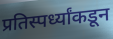
प्रतिस्पर्ध्यांकडून